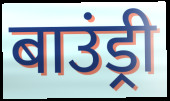
बाउंड्री